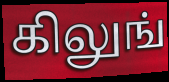
கிலுங்